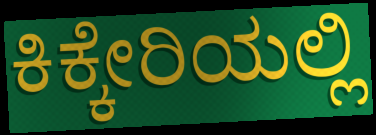
ಕಿಕ್ಕೇರಿಯಲ್ಲಿ